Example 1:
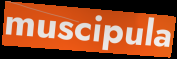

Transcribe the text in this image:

muscipula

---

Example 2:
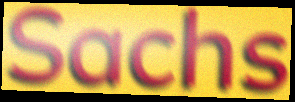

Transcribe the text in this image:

Sachs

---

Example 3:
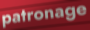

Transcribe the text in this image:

patronage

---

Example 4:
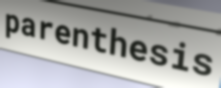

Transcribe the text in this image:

parenthesis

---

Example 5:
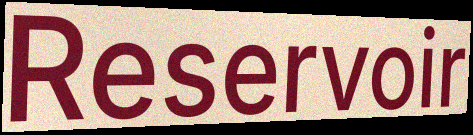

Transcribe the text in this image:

Reservoir